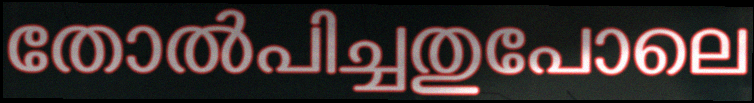
തോൽപിച്ചതുപോലെ